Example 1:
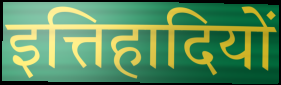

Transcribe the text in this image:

इत्तिहादियों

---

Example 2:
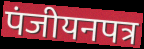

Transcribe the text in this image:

पंजीयनपत्र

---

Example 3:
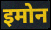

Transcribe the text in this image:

इमोन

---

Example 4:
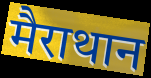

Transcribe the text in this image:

मैराथान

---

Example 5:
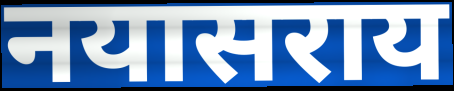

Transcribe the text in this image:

नयासराय